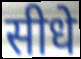
सीधे